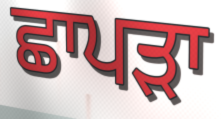
ਛਾਪੜਾ